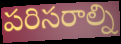
పరిసరాల్ని